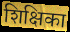
शिक्षिका